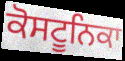
ਕੋਸਟੂਨਿਕਾ